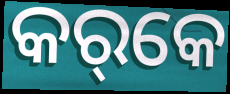
କର୍‌କେ